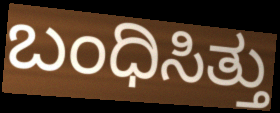
ಬಂಧಿಸಿತ್ತು